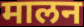
मालन